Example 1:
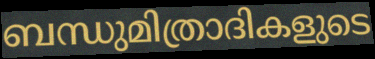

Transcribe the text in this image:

ബന്ധുമിത്രാദികളുടെ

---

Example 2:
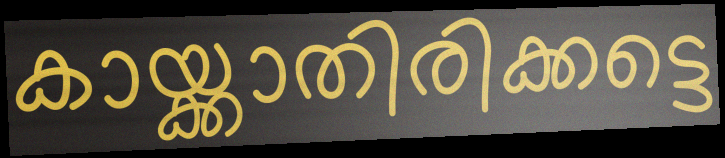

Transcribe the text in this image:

കായ്ക്കാതിരിക്കട്ടെ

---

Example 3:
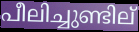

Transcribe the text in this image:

പീലിച്ചുണ്ടില്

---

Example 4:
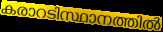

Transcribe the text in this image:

കരാറടിസ്ഥാനത്തിൽ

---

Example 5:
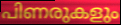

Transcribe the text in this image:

പിണരുകളും